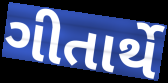
ગીતાર્થે